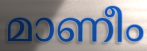
മാണീം